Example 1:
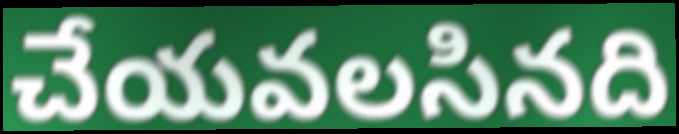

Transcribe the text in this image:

చేయవలసినది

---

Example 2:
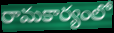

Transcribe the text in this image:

రామకార్యంలో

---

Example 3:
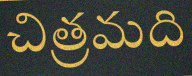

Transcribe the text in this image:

చిత్రమది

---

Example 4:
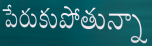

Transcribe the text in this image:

పేరుకుపోతున్నా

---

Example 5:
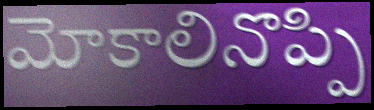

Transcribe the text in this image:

మోకాలినొప్పి